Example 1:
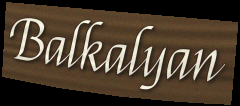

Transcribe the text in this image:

Balkalyan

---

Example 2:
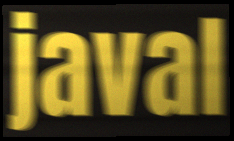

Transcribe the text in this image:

javal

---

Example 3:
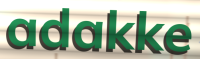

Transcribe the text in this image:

adakke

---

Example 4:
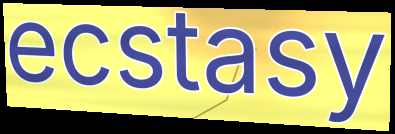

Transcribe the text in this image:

ecstasy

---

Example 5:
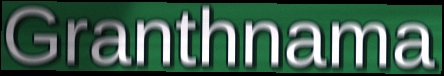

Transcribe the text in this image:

Granthnama